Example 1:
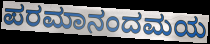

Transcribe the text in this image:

ಪರಮಾನಂದಮಯ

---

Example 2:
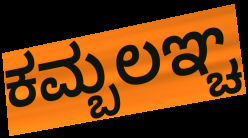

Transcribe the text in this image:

ಕಮ್ಬಲಞ್ಚ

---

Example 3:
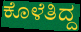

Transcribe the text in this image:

ಕೊಳೆತಿದ್ದ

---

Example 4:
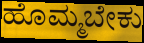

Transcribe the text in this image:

ಹೊಮ್ಮಬೇಕು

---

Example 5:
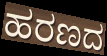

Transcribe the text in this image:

ಹರಣದ